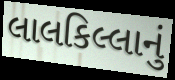
લાલકિલ્લાનું